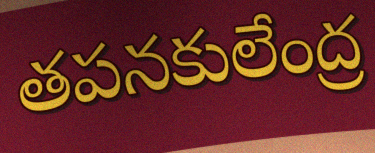
తపనకులేంద్ర